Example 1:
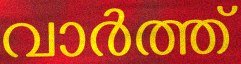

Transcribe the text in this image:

വാർത്ത്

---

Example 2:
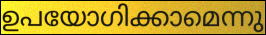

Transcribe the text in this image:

ഉപയോഗിക്കാമെന്നു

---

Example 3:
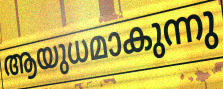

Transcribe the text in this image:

ആയുധമാകുന്നു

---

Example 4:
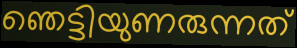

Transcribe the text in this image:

ഞെട്ടിയുണരുന്നത്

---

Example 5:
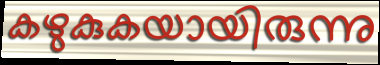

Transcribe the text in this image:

കഴുകുകയായിരുന്നു